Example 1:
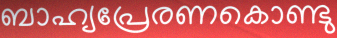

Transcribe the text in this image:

ബാഹ്യപ്രേരണകൊണ്ടു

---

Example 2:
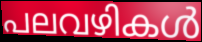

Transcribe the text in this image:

പലവഴികൾ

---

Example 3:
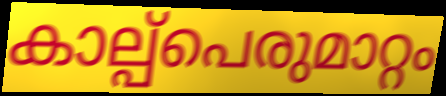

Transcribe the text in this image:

കാല്പ്പെരുമാറ്റം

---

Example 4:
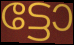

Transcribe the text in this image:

ട്ടോ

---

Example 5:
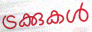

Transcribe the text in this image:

ട്രക്കുകൾ